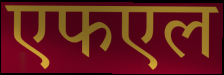
एफएल